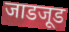
जाडजूड